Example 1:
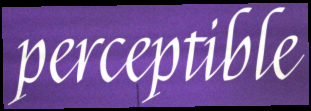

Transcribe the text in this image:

perceptible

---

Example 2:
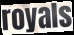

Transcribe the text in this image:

royals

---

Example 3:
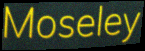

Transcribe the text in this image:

Moseley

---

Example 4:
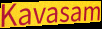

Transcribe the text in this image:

Kavasam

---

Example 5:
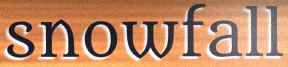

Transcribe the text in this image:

snowfall